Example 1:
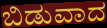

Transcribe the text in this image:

ಬಿಡುವಾದ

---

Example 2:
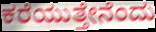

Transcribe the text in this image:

ಕರೆಯುತ್ತೇನೆಂದು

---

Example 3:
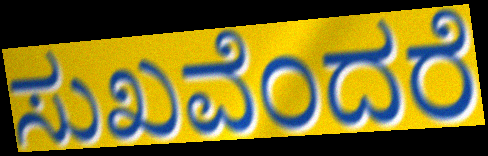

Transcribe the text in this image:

ಸುಖವೆಂದರೆ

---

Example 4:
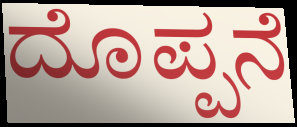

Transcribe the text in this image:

ದೊಪ್ಪನೆ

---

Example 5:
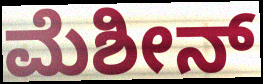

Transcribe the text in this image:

ಮೆಶೀನ್